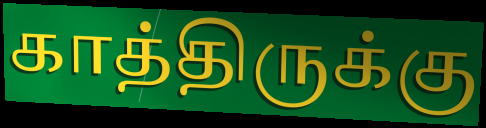
காத்திருக்கு